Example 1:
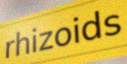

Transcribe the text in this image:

rhizoids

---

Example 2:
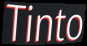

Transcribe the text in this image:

Tinto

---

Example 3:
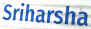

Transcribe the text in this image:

Sriharsha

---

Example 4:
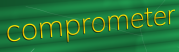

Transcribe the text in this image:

comprometer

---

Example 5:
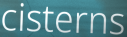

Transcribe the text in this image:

cisterns